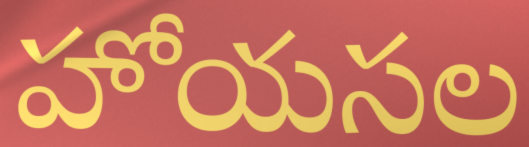
హోయసల